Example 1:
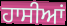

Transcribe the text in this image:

ਹਾਸੀਆਂ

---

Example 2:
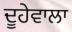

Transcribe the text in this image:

ਦੂਹੇਵਾਲਾ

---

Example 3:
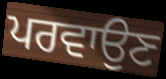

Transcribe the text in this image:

ਪਰਵਾਉਣ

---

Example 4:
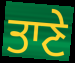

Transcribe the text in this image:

ਤਾਣੇ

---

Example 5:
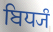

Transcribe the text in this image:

ਬਿਧ੍ਯੰ